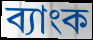
ব্যাংক